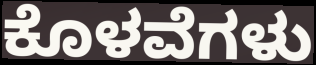
ಕೊಳವೆಗಳು